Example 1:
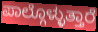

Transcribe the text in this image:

ಪಾಲ್ಗೊಳ್ಳುತ್ತಾರೆ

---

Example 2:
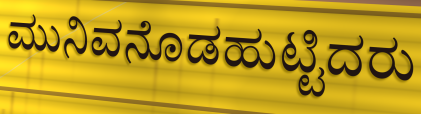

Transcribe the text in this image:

ಮುನಿವನೊಡಹುಟ್ಟಿದರು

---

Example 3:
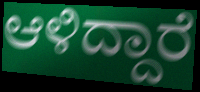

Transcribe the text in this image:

ಆಳಿದ್ದಾರೆ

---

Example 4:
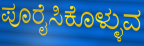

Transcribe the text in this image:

ಪೂರೈಸಿಕೊಳ್ಳುವ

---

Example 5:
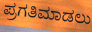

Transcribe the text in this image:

ಪ್ರಗತಿಮಾಡಲು